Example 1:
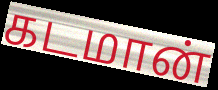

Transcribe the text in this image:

கடமான்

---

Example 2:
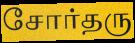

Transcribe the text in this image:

சோர்தரு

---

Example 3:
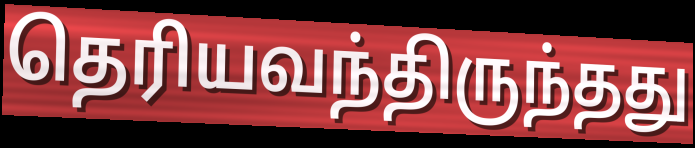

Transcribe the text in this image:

தெரியவந்திருந்தது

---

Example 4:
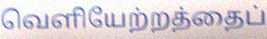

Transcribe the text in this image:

வெளியேற்றத்தைப்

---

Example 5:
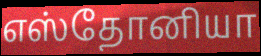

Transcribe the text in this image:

எஸ்தோனியா